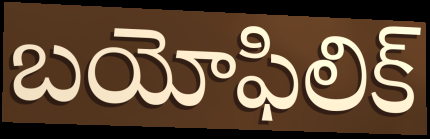
బయోఫిలిక్